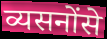
व्यसनोंसे